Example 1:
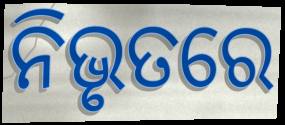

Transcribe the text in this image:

ନିଭୃତରେ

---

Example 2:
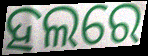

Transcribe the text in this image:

ହଲରେ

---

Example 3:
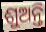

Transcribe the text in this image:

ଶୁଅନ୍ତି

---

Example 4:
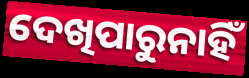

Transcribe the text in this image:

ଦେଖିପାରୁନାହିଁ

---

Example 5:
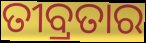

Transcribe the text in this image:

ତୀବ୍ରତାର